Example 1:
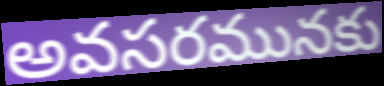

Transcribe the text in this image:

అవసరమునకు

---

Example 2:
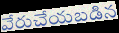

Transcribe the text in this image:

వేరుచేయబడిన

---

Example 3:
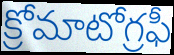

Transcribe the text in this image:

క్రోమాటోగ్రఫీ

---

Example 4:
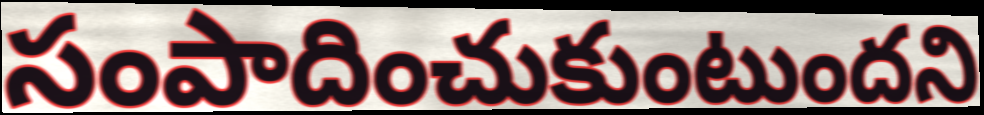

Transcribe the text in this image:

సంపాదించుకుంటుందని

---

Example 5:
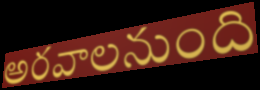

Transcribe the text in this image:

అరవాలనుంది